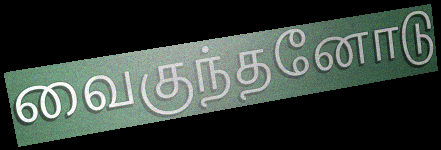
வைகுந்தனோடு